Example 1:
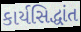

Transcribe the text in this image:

કાર્યસિદ્ધાંત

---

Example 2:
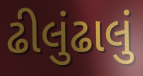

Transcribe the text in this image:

ઢીલુંઢાલું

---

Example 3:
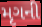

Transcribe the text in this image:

મૃગની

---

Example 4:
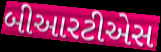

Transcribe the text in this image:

બીઆરટીએસ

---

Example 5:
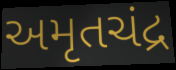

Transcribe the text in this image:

અમૃતચંદ્ર